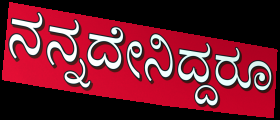
ನನ್ನದೇನಿದ್ದರೂ